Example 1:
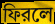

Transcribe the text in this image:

ফিরলে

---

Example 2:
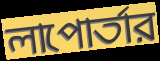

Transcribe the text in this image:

লাপোর্তার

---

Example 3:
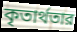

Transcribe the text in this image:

কৃতার্থতার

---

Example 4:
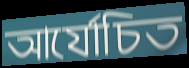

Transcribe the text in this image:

আর্যোচিত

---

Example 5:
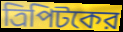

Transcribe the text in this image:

ত্রিপিটকের